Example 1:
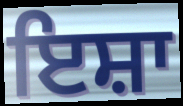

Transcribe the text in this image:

ਇਸ਼ਾ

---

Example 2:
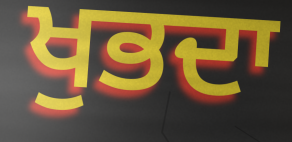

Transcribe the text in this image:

ਖੁਭਦਾ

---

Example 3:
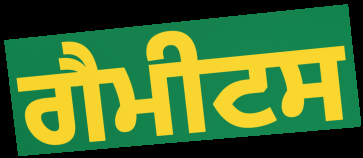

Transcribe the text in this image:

ਗੈਮੀਟਸ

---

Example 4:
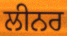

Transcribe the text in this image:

ਲੀਨਰ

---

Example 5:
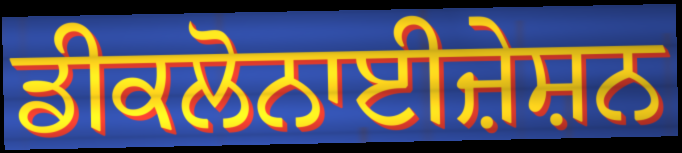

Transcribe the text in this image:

ਡੀਕਲੋਨਾਈਜ਼ੇਸ਼ਨ